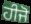
ਹੀਜੋ